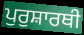
ਪੁਰੁਸ਼ਾਰਥੀ